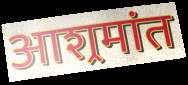
आश्रमांत